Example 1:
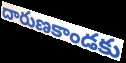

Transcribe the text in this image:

దారుణకాండకు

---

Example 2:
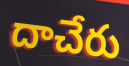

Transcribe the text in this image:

దాచేరు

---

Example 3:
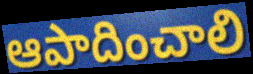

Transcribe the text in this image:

ఆపాదించాలి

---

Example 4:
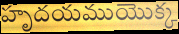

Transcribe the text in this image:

హృదయముయొక్క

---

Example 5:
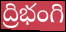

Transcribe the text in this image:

ద్రిభంగి